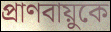
প্রাণবায়ুকে